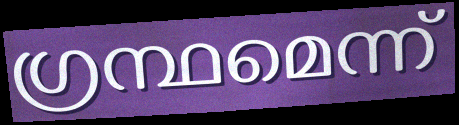
ഗ്രന്ഥമെന്ന്